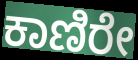
ಕಾಣಿರೇ